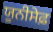
ਯੂਨੀਸੇਫ਼